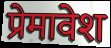
प्रेमावेश